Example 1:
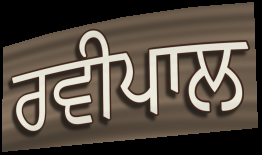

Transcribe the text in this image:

ਰਵੀਪਾਲ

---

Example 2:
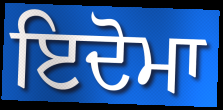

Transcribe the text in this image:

ਇਦੋਮਾ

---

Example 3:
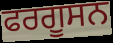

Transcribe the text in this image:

ਫਰਗੂਸਨ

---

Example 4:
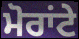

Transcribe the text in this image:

ਮੋਰਾਂਟੇ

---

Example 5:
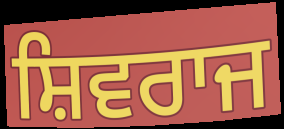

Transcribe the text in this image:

ਸ਼ਿਵਰਾਜ